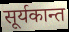
सूर्यकान्त